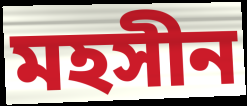
মহসীন